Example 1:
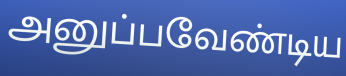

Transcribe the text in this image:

அனுப்பவேண்டிய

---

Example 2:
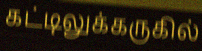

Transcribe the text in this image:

கட்டிலுக்கருகில்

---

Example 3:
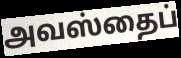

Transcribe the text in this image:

அவஸ்தைப்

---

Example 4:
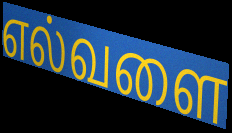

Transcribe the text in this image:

எல்வளை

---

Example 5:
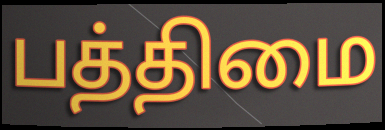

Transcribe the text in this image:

பத்திமை